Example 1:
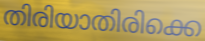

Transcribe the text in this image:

തിരിയാതിരിക്കെ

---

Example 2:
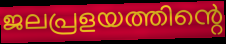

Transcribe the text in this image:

ജലപ്രളയത്തിന്റെ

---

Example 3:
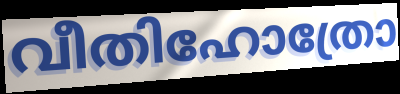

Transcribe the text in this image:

വീതിഹോത്രോ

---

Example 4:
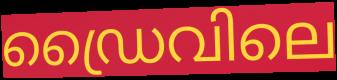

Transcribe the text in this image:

ഡ്രൈവിലെ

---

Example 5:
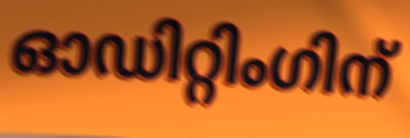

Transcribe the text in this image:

ഓഡിറ്റിംഗിന്